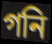
গনি